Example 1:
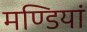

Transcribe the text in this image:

मण्डियां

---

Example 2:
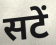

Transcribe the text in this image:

सटें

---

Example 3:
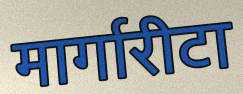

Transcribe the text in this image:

मार्गारीटा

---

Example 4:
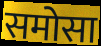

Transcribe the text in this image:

समोसा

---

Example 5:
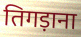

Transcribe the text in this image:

तिगड़ाना